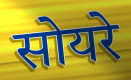
सोयरे